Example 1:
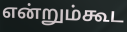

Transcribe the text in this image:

என்றும்கூட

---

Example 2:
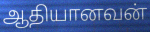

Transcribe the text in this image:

ஆதியானவன்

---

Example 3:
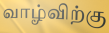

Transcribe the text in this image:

வாழ்விற்கு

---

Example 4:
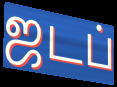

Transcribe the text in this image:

ஜடப்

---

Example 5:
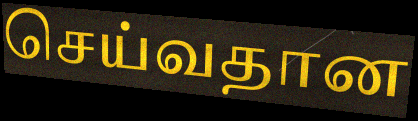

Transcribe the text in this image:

செய்வதான